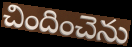
చిందించెను